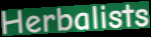
Herbalists